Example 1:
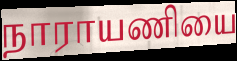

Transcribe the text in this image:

நாராயணியை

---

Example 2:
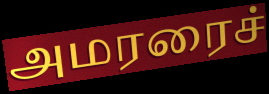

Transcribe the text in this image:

அமரரைச்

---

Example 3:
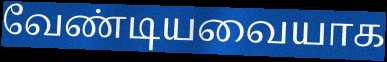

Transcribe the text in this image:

வேண்டியவையாக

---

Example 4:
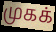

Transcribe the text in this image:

முகக்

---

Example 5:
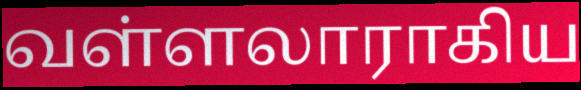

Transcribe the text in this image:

வள்ளலாராகிய